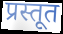
प्रस्तूत